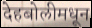
देहबोलीमधून